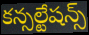
కన్సల్టేషన్స్